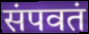
संपवतं